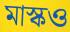
মাস্কও